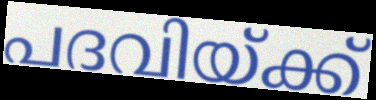
പദവിയ്ക്ക്